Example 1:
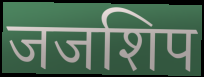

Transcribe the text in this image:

जजशिप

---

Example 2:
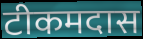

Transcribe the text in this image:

टीकमदास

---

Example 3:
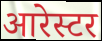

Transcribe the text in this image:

आरेस्टर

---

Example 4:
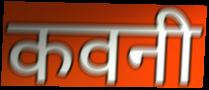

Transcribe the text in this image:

कवनी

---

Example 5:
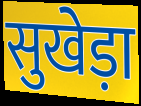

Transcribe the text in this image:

सुखेड़ा